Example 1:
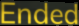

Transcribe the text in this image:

Ended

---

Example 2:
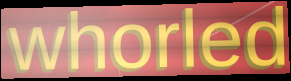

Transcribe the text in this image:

whorled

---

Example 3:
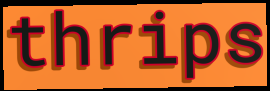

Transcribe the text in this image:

thrips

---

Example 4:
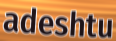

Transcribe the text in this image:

adeshtu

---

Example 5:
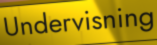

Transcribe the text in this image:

Undervisning